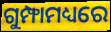
ଗୁମ୍ଫାମଧ୍ୟରେ